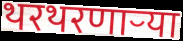
थरथरणाऱ्या